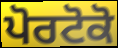
ਪੋਰਟੋਕੋ